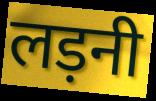
लड़नी